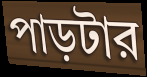
পাড়টার